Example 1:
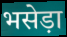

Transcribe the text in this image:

भसेड़ा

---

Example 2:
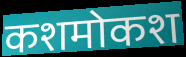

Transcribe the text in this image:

कशमोकश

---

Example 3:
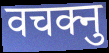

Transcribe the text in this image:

वचक्नु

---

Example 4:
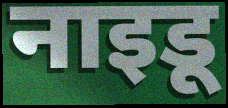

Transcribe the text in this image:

नाइडू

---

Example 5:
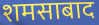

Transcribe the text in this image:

शमसाबाद